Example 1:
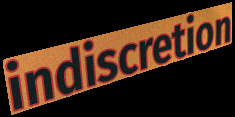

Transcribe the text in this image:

indiscretion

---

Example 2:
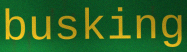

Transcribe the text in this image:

busking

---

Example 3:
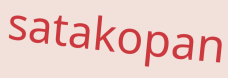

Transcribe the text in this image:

satakopan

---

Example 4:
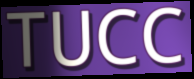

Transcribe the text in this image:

TUCC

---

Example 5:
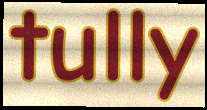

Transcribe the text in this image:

tully